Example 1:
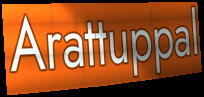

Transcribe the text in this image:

Arattuppal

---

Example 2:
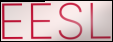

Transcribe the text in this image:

EESL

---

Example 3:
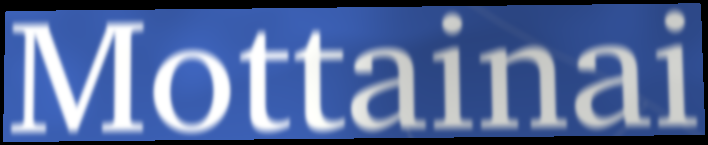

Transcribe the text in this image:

Mottainai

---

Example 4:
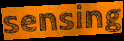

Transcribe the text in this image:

sensing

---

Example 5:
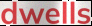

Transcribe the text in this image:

dwells